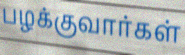
பழக்குவார்கள்